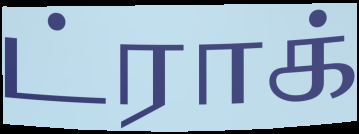
ட்ராக்